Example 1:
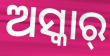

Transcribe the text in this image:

ଅସ୍କାର୍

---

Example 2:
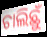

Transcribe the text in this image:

ଚାଲିଛୁଁ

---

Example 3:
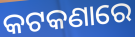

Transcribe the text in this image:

କଟକଣାରେ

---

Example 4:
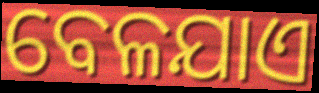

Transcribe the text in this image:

ବେଳଯାଏ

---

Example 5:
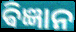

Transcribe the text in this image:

ଵିଜ୍ଞାନ